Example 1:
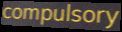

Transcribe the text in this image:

compulsory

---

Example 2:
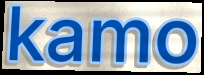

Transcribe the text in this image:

kamo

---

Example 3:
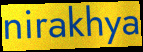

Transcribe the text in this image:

nirakhya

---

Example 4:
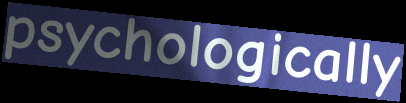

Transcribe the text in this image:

psychologically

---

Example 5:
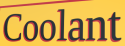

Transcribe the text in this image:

Coolant